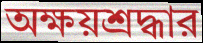
অক্ষয়শ্রদ্ধার